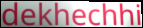
dekhechhi